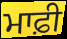
ਮਾਫ਼ੀ